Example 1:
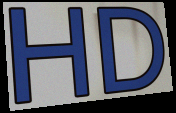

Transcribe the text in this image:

HD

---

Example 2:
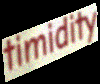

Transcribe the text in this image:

timidity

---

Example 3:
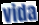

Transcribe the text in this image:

vida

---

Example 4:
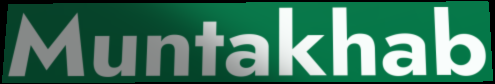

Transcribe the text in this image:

Muntakhab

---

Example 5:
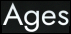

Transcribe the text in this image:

Ages